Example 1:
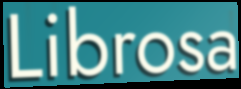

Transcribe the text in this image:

Librosa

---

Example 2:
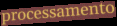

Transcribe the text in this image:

processamento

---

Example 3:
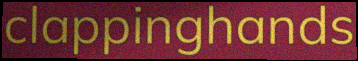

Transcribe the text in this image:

clappinghands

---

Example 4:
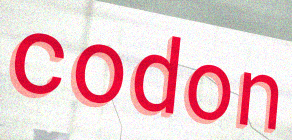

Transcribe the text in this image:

codon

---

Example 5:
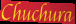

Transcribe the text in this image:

Chuchura